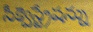
సీక్వెస్ట్రేషన్ను